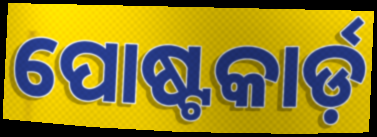
ପୋଷ୍ଟକାର୍ଡ଼